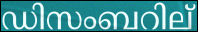
ഡിസംബറില്